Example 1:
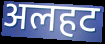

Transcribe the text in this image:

अलहट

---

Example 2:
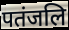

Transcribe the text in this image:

पतंजलि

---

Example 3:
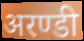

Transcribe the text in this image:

अरण्डी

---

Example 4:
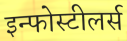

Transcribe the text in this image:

इन्फोस्टीलर्स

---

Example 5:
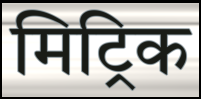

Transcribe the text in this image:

मिट्रिक